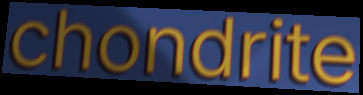
chondrite